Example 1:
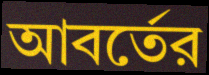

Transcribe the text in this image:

আবর্তের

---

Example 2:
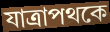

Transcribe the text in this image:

যাত্রাপথকে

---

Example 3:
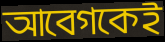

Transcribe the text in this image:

আবেগকেই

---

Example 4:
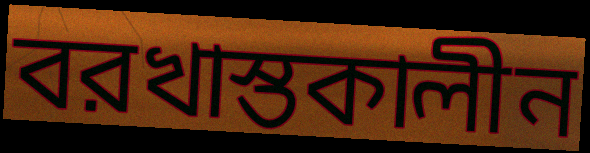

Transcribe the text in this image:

বরখাস্তকালীন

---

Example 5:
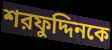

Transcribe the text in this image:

শরফুদ্দিনকে